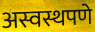
अस्वस्थपणे